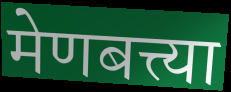
मेणबत्त्या